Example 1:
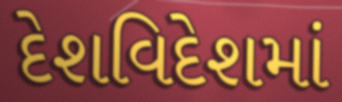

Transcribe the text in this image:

દેશવિદેશમાં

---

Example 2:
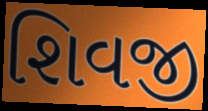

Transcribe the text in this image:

શિવજી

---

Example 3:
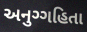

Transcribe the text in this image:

અનુગ્ગહિતા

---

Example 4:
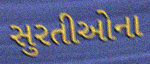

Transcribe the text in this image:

સુરતીઓના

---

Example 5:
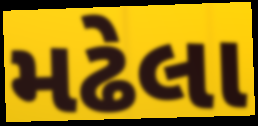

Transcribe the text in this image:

મઢેલા